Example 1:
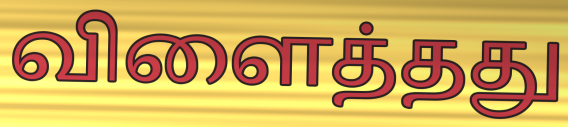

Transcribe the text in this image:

விளைத்தது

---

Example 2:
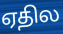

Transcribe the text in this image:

ஏதில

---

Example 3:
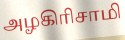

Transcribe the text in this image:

அழகிரிசாமி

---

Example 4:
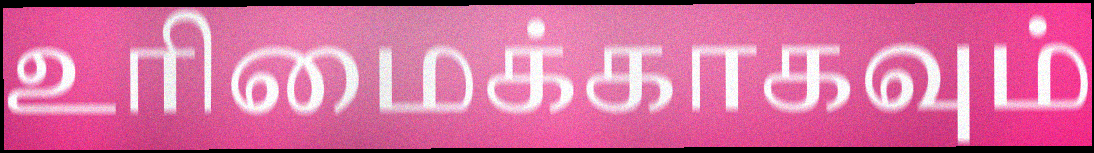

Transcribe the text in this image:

உரிமைக்காகவும்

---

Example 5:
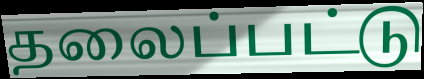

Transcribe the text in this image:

தலைப்பட்டு